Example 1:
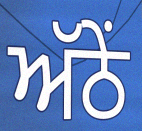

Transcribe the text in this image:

ਅੱਠੇਂ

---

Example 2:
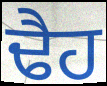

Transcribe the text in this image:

ਢੈਹ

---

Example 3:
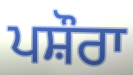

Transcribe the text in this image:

ਪਸ਼ੌਰਾ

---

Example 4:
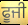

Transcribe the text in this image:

ਫੂਜੀ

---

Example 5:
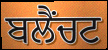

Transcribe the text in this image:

ਬਲੈਂਚਟ